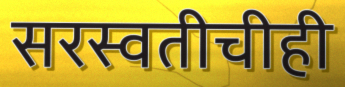
सरस्वतीचीही